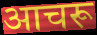
आचरू